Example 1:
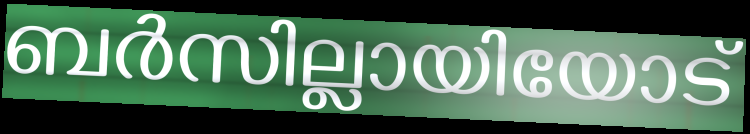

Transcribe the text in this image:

ബർസില്ലായിയോട്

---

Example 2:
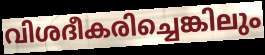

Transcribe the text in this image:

വിശദീകരിച്ചെങ്കിലും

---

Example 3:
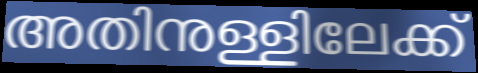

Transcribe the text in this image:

അതിനുള്ളിലേക്ക്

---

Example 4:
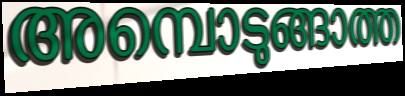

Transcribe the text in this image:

അമ്പൊടുങ്ങാത്ത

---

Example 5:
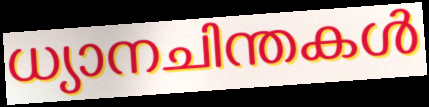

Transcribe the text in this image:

ധ്യാനചിന്തകൾ